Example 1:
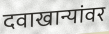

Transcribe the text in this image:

दवाखान्यांवर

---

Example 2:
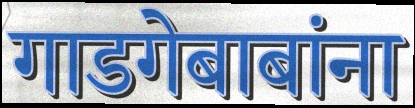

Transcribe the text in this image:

गाडगेबाबांना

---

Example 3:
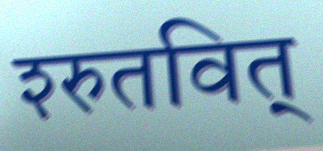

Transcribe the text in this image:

श्रुतवित्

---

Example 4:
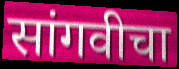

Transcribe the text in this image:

सांगवीचा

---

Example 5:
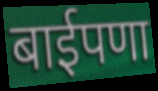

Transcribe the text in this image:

बाईपणा